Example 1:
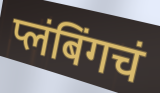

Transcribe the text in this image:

प्लंबिंगचं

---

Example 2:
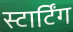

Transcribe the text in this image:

स्टार्टिंग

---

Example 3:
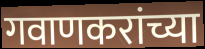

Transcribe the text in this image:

गवाणकरांच्या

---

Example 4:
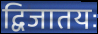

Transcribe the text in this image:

द्विजातयः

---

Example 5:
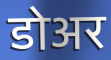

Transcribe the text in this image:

डोअर